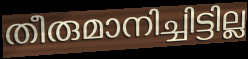
തീരുമാനിച്ചിട്ടില്ല